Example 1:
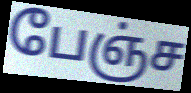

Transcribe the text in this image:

பேஞ்ச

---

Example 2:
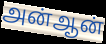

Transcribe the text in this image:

அன்ஆன்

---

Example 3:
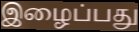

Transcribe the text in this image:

இழைப்பது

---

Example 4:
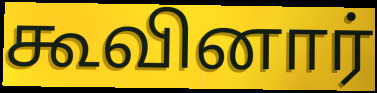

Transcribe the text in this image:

கூவினார்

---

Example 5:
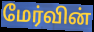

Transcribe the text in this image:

மேர்வின்